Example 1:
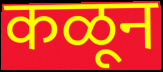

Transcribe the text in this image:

कळून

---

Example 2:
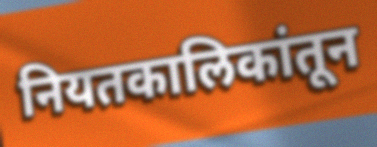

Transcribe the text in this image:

नियतकालिकांतून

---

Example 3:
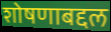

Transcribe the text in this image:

शोषणाबद्दल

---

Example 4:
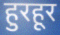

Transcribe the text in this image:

हुरहूर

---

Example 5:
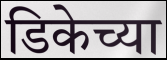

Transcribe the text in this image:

डिकेच्या